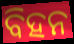
ବିହନ